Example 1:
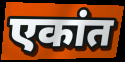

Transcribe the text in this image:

एकांत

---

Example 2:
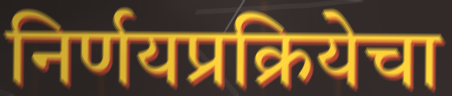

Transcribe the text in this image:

निर्णयप्रक्रियेचा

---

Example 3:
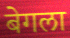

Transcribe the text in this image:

बेगला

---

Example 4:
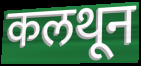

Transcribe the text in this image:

कलथून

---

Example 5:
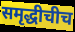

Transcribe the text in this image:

समृद्धीचीच